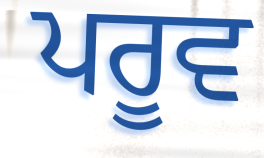
ਪਰੂਵ